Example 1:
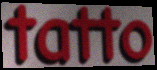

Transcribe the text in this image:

tatto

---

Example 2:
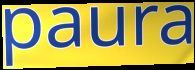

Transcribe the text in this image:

paura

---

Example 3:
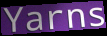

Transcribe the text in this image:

Yarns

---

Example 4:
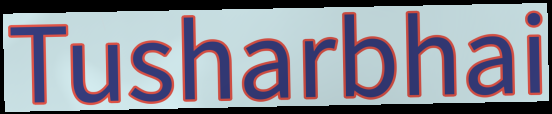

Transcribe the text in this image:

Tusharbhai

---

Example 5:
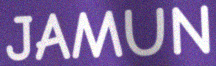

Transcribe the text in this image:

JAMUN